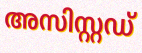
അസിസ്റ്റഡ്